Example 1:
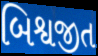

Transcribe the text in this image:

બિશ્વજીત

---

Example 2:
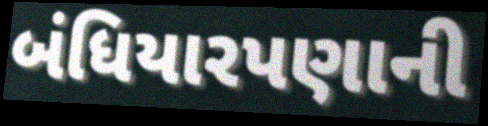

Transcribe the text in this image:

બંધિયારપણાની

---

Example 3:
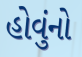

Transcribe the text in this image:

હોવુંનો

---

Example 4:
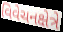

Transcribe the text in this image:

વિવેચનક્ષેત્રે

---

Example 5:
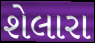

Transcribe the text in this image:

શેલારા